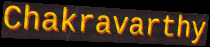
Chakravarthy